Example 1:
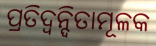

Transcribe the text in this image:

ପ୍ରତିଦ୍ୱନ୍ଦିତାମୂଳକ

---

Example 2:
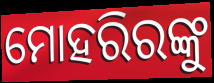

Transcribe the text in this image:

ମୋହରିରଙ୍କୁ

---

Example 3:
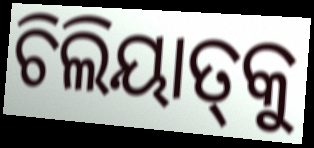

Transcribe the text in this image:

ଚିଲିୟାତ୍‍କୁ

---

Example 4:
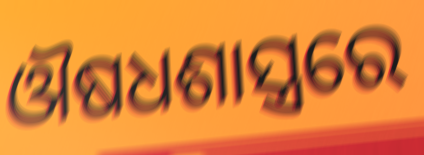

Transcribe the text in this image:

ଔଷଧଶାସ୍ତ୍ରରେ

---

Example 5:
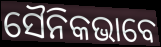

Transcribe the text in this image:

ସୈନିକଭାବେ